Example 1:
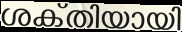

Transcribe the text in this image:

ശക്‌തിയായി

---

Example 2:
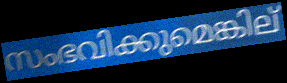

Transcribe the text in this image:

സംഭവിക്കുമെങ്കില്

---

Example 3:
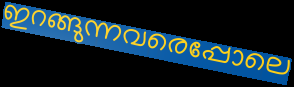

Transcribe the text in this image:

ഇറങ്ങുന്നവരെപ്പോലെ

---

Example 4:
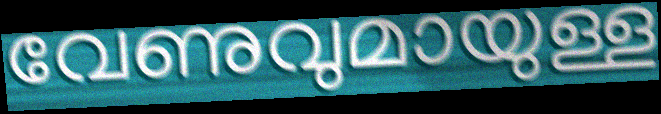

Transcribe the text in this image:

വേണുവുമായുള്ള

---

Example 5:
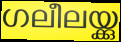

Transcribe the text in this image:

ഗലീലയ്ക്കു